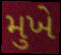
મુખે